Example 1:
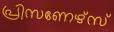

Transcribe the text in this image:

പ്രിസണേഴ്സ്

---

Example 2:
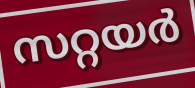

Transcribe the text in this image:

സറ്റയർ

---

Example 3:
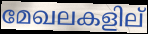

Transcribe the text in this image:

മേഖലകളില്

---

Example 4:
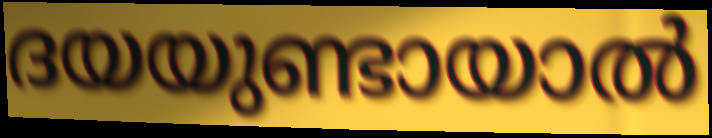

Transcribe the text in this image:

ദയയുണ്ടായാൽ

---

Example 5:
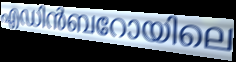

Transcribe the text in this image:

എഡിൻബറോയിലെ